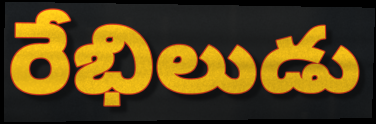
రేభిలుడు